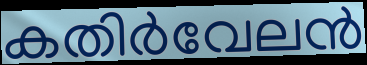
കതിർവേലൻ